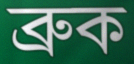
ব্রুক